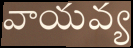
వాయవ్య